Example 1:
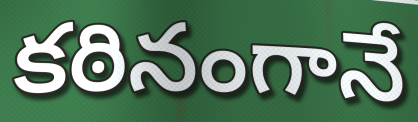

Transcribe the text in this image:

కఠినంగానే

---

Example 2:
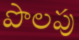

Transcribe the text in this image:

పొలపు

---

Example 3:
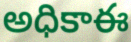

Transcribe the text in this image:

అధికాఈ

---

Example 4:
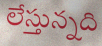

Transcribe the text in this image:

లేస్తున్నది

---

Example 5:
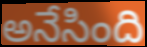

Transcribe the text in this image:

అనేసింది